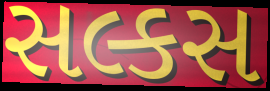
સલ્કસ